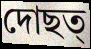
দোছত্